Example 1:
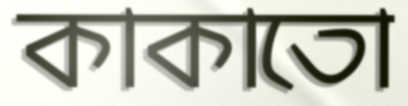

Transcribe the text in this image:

কাকাতো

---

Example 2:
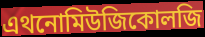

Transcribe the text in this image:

এথনোমিউজিকোলজি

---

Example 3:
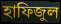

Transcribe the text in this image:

হাফিজুল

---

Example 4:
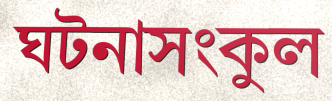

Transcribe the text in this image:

ঘটনাসংকুল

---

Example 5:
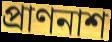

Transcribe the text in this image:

প্রাণনাশ